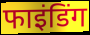
फाइंडिंग